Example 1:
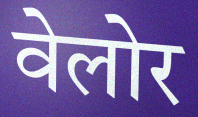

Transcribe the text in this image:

वेलोर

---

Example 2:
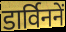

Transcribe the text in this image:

डार्विननें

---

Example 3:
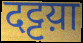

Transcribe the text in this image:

दट्टय़ा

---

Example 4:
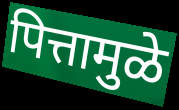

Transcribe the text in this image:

पित्तामुळे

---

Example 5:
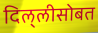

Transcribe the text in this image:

दिल्लीसोबत